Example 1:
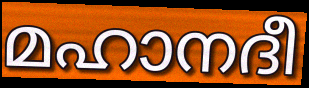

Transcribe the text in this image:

മഹാനദീ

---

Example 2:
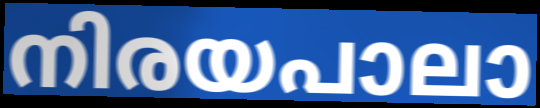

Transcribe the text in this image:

നിരയപാലാ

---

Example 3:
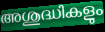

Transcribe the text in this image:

അശുദ്ധികളും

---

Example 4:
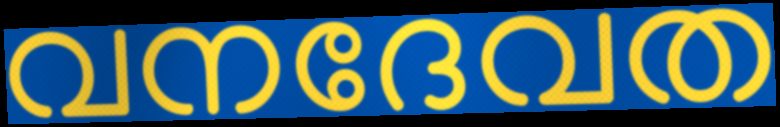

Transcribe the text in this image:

വനദേവത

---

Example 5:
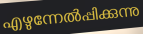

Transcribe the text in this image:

എഴുന്നേൽപ്പിക്കുന്നു